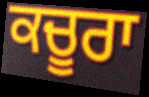
ਕਚੂਰਾ